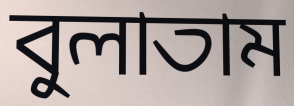
বুলাতাম